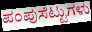
ಪಂಪುಸೆಟ್ಟುಗಳು